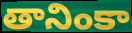
తానింకా